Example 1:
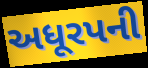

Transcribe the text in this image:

અધૂરપની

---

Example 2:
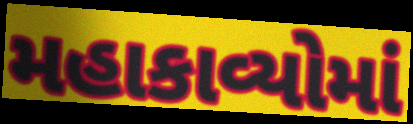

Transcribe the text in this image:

મહાકાવ્યોમાં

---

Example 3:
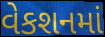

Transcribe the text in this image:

વેકશનમાં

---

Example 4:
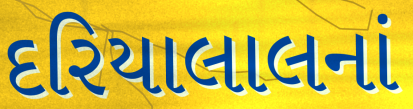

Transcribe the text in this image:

દરિયાલાલનાં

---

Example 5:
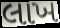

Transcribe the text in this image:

લાખ